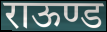
राऊण्ड